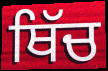
ਥਿੱਚ